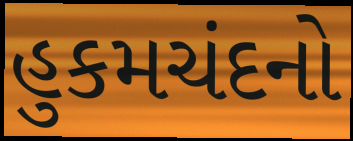
હુકમચંદનો